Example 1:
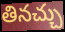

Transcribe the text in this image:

తినచ్చు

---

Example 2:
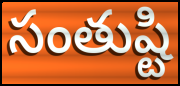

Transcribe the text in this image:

సంతుష్టి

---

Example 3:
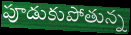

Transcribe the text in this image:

పూడుకుపోతున్న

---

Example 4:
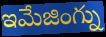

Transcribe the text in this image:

ఇమేజింగ్ను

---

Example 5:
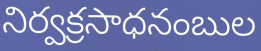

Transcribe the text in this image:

నిర్వక్రసాధనంబుల